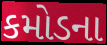
કમોડના